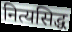
नित्यसिद्ध